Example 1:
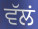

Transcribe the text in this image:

ਵੱਲਂ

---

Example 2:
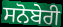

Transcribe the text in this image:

ਸਨੋਬੇਰੀ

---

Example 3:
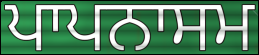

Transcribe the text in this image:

ਪਾਪਨਾਸਮ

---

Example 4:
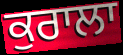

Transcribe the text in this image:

ਕੁਰਾਲਾ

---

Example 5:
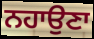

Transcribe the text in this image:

ਨਹਾਉਣਾ